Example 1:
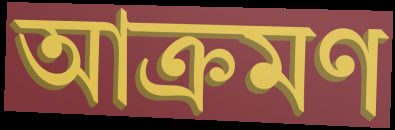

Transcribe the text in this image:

আক্রমণ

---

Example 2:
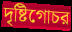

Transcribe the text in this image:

দৃষ্টিগোচর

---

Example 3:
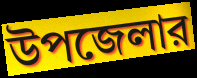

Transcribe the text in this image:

উপজেলার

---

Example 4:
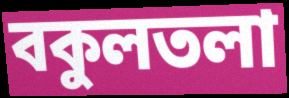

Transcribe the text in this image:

বকুলতলা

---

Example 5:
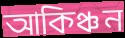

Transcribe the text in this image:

আকিঞ্চন